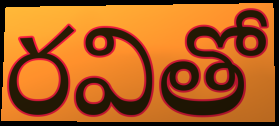
రవితో